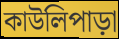
কাউলিপাড়া